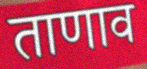
ताणाव